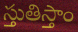
స్తుతిస్తాం